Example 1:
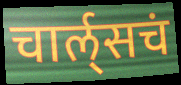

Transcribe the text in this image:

चार्ल्सचं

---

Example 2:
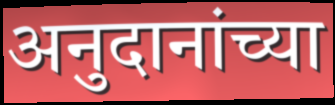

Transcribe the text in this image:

अनुदानांच्या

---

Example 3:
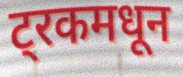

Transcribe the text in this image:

ट्रकमधून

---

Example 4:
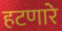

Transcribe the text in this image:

हटणारे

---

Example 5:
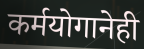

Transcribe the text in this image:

कर्मयोगानेही